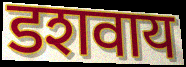
डशवाय